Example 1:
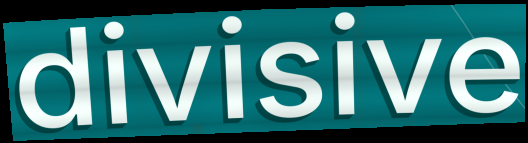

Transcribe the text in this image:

divisive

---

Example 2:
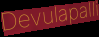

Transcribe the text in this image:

Devulapalli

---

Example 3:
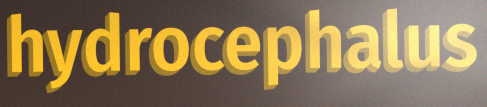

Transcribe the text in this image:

hydrocephalus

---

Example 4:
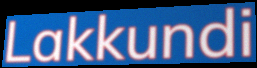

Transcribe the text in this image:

Lakkundi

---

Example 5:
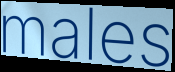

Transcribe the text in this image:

males